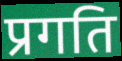
प्रगति